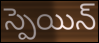
స్పెయిన్